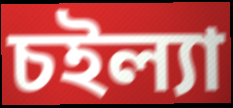
চইল্যা